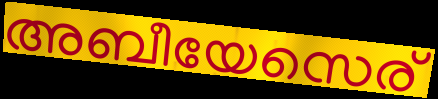
അബീയേസെര്